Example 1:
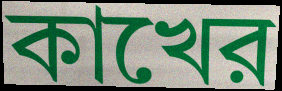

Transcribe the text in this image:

কাখের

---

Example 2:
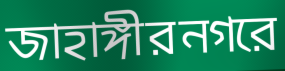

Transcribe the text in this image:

জাহাঙ্গীরনগরে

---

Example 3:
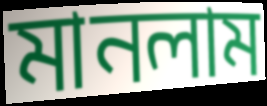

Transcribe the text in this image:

মানলাম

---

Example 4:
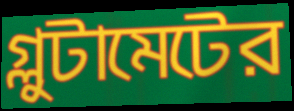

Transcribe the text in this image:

গ্লুটামেটের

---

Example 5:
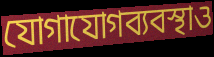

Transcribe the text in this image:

যোগাযোগব্যবস্থাও